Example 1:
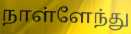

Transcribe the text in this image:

நாள்ளேந்து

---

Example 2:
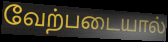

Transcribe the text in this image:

வேற்படையால்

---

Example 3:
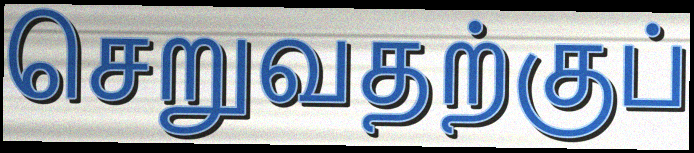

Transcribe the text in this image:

செறுவதற்குப்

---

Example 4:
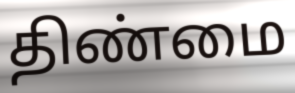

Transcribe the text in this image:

திண்மை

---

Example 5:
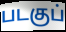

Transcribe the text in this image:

படகுப்